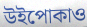
উইপোকাও